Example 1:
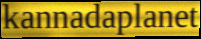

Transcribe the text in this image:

kannadaplanet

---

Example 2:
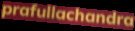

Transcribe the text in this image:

prafullachandra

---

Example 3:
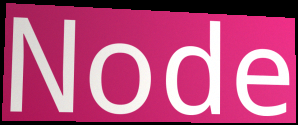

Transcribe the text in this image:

Node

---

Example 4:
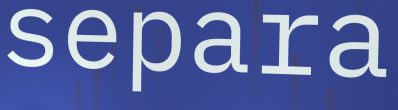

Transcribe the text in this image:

separa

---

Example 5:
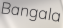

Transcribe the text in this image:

Bangala